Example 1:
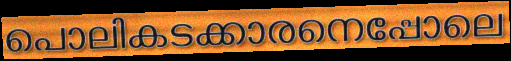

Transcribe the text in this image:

പൊലികടക്കാരനെപ്പോലെ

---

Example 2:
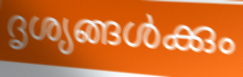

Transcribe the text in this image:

ദൃശ്യങ്ങൾക്കും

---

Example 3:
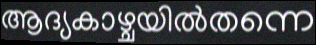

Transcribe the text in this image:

ആദ്യകാഴ്ചയിൽതന്നെ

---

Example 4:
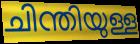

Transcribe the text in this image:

ചിന്തിയുള്ള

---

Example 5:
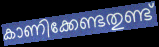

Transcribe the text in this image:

കാണിക്കേണ്ടതുണ്ട്